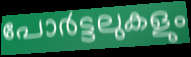
പോർട്ടലുകളും